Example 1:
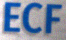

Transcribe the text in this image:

ECF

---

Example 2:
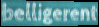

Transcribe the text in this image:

belligerent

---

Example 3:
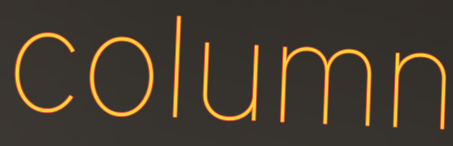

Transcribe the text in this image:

column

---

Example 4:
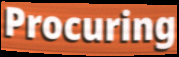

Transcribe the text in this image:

Procuring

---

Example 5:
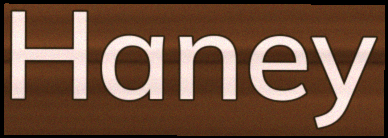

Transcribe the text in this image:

Haney